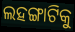
ଲହଙ୍ଗାଟିକୁ